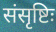
संसृष्टिः